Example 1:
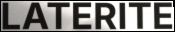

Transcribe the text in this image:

LATERITE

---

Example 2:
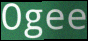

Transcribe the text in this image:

Ogee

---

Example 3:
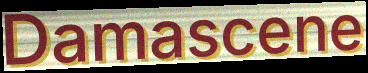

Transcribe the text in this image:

Damascene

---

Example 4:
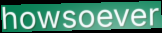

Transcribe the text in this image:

howsoever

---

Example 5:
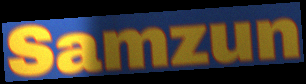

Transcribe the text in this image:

Samzun